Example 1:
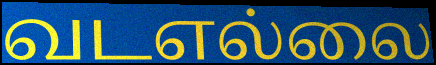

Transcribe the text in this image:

வடஎல்லை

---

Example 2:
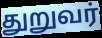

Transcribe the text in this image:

துறுவர்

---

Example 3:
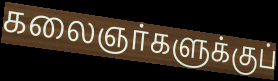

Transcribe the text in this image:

கலைஞர்களுக்குப்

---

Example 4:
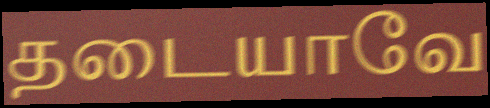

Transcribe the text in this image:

தடையாவே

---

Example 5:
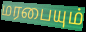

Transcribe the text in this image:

மரபையும்